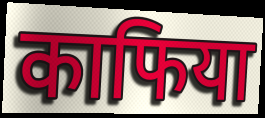
काफिया